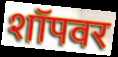
शॉपवर